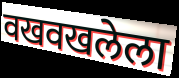
वखवखलेला